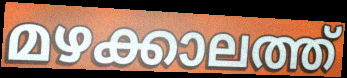
മഴക്കാലത്ത്